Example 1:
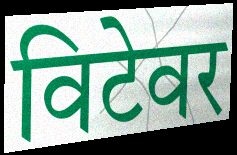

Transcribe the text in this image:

विटेवर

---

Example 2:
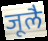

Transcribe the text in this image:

जूलै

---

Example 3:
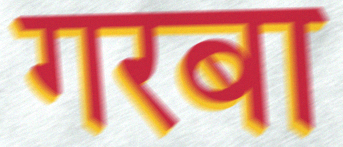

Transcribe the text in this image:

गरबा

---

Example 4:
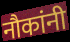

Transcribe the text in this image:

नौकांनी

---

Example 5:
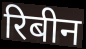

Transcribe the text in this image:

रिबीन